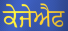
ਕੇਜੇਐਫ